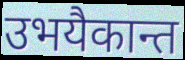
उभयैकान्त